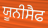
ਯੂਨੀਸੈਫ